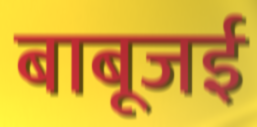
बाबूजई